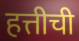
हत्तीची